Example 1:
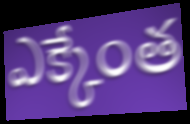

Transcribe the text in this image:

ఎక్కేంత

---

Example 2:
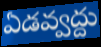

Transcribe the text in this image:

ఏడవ్వద్దు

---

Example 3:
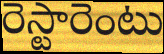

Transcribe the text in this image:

రెస్టారెంటు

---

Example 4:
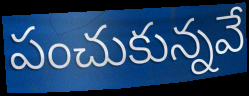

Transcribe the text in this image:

పంచుకున్నవే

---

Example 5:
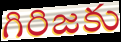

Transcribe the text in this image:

గిరిజకు